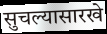
सुचल्यासारखे